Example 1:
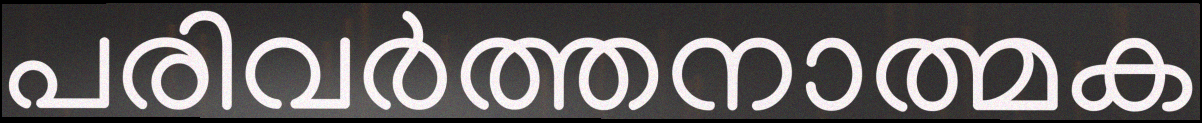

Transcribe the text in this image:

പരിവർത്തനാത്മക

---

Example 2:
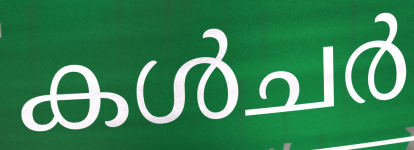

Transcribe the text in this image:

കൾചർ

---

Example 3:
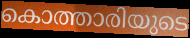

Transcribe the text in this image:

കൊത്താരിയുടെ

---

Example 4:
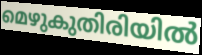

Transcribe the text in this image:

മെഴുകുതിരിയിൽ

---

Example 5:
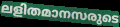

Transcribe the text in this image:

ലളിതമാനസരുടെ